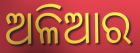
ଅଳିଆର